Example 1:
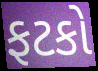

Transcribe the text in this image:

ફટકો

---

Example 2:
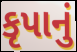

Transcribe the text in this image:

કૃપાનું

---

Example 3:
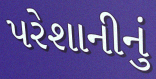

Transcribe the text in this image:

પરેશાનીનું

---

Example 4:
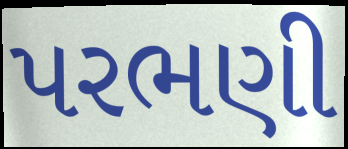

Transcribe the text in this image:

પરભણી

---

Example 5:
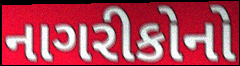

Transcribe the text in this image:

નાગરીકોનો